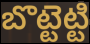
బొట్టెట్టి